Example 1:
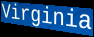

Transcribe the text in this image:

Virginia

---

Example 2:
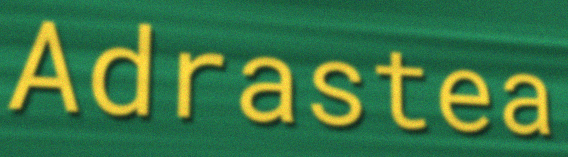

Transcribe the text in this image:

Adrastea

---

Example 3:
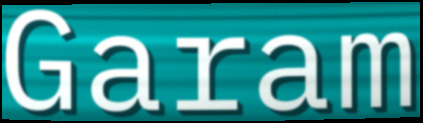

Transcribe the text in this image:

Garam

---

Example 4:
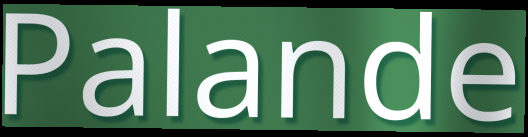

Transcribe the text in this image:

Palande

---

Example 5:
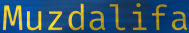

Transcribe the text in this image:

Muzdalifa